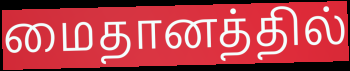
மைதானத்தில்